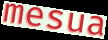
mesua